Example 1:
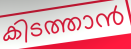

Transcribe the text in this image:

കിടത്താൻ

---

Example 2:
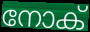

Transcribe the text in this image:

നോക്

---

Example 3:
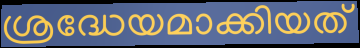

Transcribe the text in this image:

ശ്രദ്ധേയമാക്കിയത്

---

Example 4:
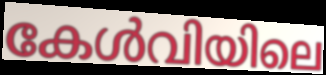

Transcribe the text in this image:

കേൾവിയിലെ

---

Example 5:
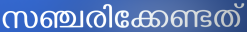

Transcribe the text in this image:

സഞ്ചരിക്കേണ്ടത്